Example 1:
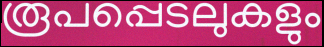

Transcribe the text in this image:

രൂപപ്പെടലുകളും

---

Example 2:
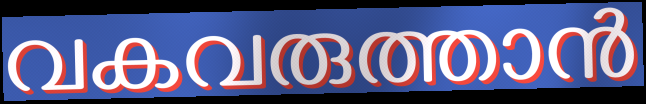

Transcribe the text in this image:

വകവരുത്താൻ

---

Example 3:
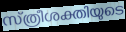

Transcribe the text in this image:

സ്‌ത്രീശക്തിയുടെ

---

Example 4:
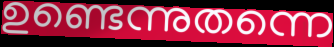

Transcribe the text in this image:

ഉണ്ടെന്നുതന്നെ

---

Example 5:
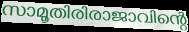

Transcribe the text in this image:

സാമൂതിരിരാജാവിന്റെ